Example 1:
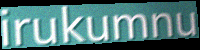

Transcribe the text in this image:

irukumnu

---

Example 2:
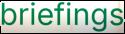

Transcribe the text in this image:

briefings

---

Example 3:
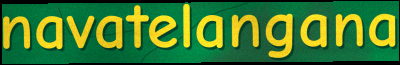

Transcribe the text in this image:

navatelangana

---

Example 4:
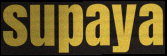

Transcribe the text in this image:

supaya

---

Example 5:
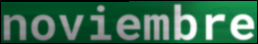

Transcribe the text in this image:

noviembre